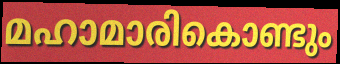
മഹാമാരികൊണ്ടും